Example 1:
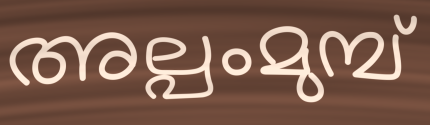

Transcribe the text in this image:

അല്പംമുമ്പ്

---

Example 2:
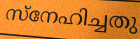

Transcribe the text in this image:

സ്നേഹിച്ചതു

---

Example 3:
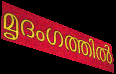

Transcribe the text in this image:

മൃദംഗത്തിൽ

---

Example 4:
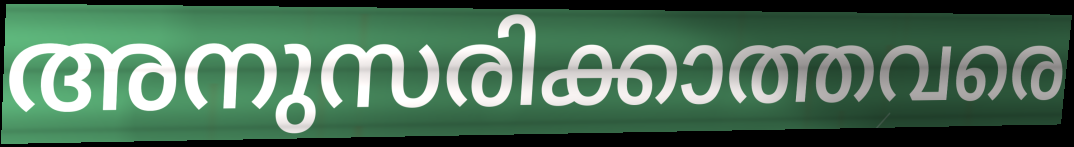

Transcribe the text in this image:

അനുസരിക്കാത്തവരെ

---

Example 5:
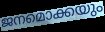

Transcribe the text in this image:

ജനമൊക്കയും